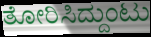
ತೋರಿಸಿದ್ದುಂಟು